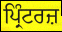
ਪ੍ਰਿੰਟਰਜ਼